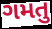
ગમતુ